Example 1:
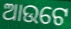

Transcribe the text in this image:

ଆଉଟେ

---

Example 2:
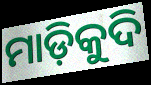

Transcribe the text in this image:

ମାଡ଼ିକୁଦି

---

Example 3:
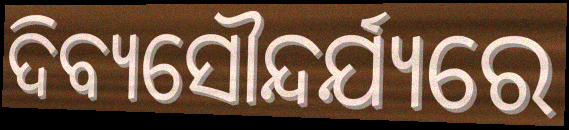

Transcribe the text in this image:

ଦିବ୍ୟସୌନ୍ଦର୍ଯ୍ୟରେ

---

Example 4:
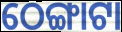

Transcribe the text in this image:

ଠେଙ୍ଗାଟା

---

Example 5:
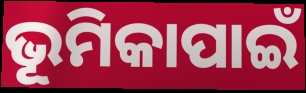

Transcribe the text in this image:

ଭୂମିକାପାଇଁ